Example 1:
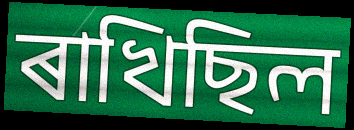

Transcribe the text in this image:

ৰাখিছিল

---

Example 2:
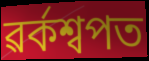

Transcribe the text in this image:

ৱৰ্কশ্বপত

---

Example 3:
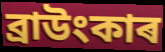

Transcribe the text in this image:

ব্ৰাউংকাৰ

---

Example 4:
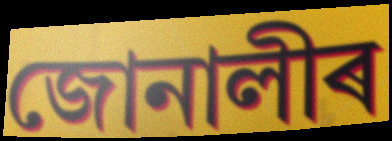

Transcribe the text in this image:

জোনালীৰ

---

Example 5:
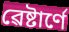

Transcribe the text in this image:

ৱেষ্টাৰ্ণে